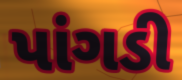
પાંગડી